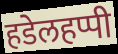
हडेलहप्पी